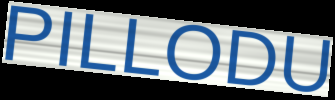
PILLODU